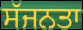
ਸੱਜਨਤਾ